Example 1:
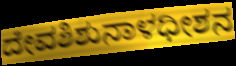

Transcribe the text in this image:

ದೇವಶಿಶುನಾಳಧೀಶನ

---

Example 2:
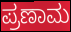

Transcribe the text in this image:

ಪ್ರಣಾಮ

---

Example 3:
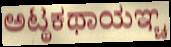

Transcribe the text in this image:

ಅಟ್ಠಕಥಾಯಞ್ಚ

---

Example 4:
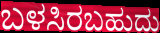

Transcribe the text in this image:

ಬಳಸಿರಬಹುದು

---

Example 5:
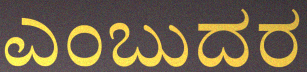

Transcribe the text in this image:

ಎಂಬುದರ